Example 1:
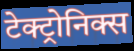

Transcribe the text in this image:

टेक्ट्रोनिक्स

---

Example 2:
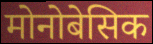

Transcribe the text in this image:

मोनोबेसिक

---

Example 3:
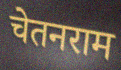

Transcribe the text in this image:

चेतनराम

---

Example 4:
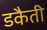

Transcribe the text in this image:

डकैती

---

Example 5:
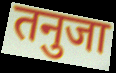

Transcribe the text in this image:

तनुजा